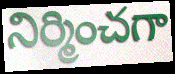
నిర్మించగా